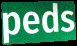
peds